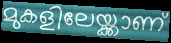
മുകളിലേയ്ക്കാണ്